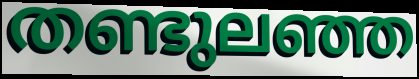
തണ്ടുലഞ്ഞ